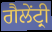
ਗੈਲੇਂਟ੍ਰੀ